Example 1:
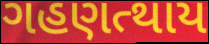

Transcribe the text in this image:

ગહણત્થાય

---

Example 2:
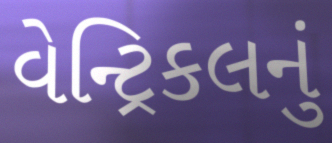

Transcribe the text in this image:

વેન્ટ્રિકલનું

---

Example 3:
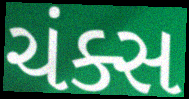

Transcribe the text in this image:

ચંક્સ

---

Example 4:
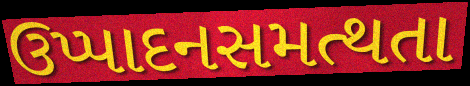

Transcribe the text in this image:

ઉપ્પાદનસમત્થતા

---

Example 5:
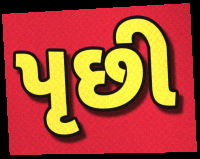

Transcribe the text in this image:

પૃછી